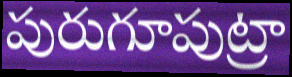
పురుగూపుట్రా